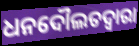
ଧନଦୌଲତଦ୍ଵାରା